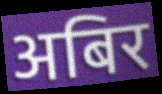
अबिर